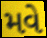
મવે